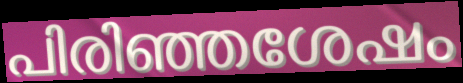
പിരിഞ്ഞശേഷം